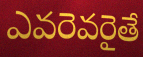
ఎవరెవరైతే